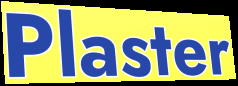
Plaster